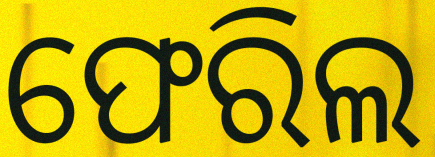
ଫେରିଲ